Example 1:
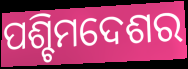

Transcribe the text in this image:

ପଶ୍ଚିମଦେଶର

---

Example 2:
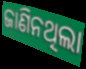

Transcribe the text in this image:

ଜାଣିନଥିଲା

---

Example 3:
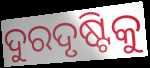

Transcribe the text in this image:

ଦୁରଦୃଷ୍ଟିକୁ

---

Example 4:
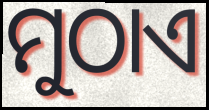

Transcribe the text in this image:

ମୁଠାଏ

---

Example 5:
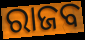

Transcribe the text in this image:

ରାଜବ